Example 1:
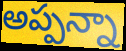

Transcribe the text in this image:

అప్పన్నా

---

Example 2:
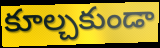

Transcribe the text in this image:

కూల్చకుండా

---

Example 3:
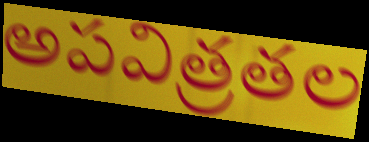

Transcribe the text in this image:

అపవిత్రతల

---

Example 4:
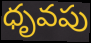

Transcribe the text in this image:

ధృవపు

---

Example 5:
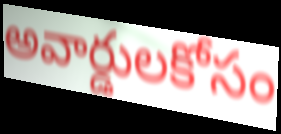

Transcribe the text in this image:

అవార్డులకోసం